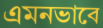
এমনভাবে